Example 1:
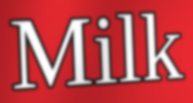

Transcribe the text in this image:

Milk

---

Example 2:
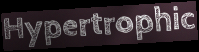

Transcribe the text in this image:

Hypertrophic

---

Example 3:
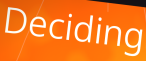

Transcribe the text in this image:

Deciding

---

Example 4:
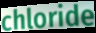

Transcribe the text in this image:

chloride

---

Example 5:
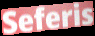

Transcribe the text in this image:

Seferis